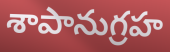
శాపానుగ్రహ